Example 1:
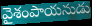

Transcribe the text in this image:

వైశంపాయనుడు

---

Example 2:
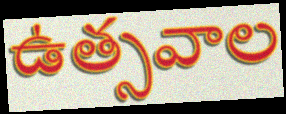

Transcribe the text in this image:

ఉత్సవాల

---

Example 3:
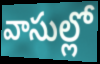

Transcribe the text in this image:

వాసుల్లో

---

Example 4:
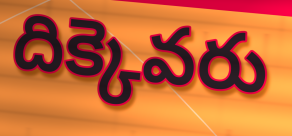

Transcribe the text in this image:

దిక్కెవరు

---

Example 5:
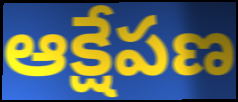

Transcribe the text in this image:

ఆక్షేపణ